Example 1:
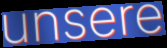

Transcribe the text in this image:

unsere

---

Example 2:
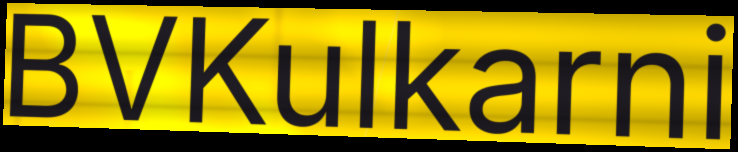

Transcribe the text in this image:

BVKulkarni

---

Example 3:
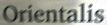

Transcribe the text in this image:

Orientalis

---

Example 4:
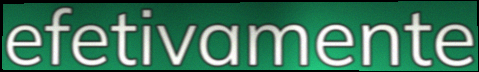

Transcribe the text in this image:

efetivamente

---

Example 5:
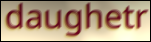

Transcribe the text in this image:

daughetr